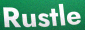
Rustle